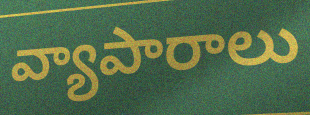
వ్యాపారాలు